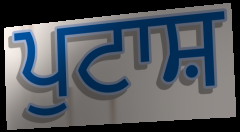
ਪੁਟਾਸ਼